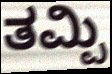
ತಮ್ಪಿ